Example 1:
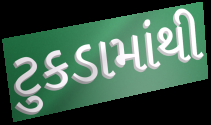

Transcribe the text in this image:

ટુકડામાંથી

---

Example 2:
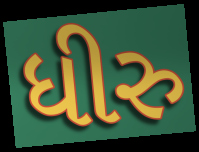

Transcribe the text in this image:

ધીરુ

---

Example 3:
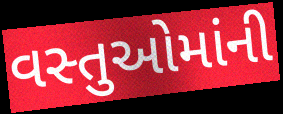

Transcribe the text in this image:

વસ્તુઓમાંની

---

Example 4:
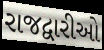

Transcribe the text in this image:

રાજદ્વારીઓ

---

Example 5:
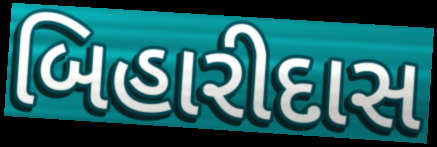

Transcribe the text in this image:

બિહારીદાસ